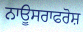
ਨਾਊਸਰਾਫਰੋਸ਼